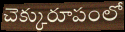
చెక్కురూపంలో